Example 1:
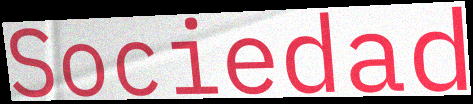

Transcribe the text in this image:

Sociedad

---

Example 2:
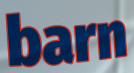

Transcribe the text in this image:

barn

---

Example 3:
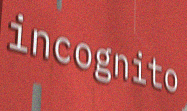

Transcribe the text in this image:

incognito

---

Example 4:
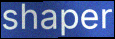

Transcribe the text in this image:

shaper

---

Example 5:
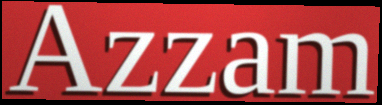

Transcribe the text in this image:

Azzam